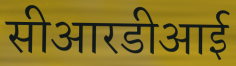
सीआरडीआई